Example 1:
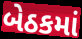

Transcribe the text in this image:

બેઠકમાં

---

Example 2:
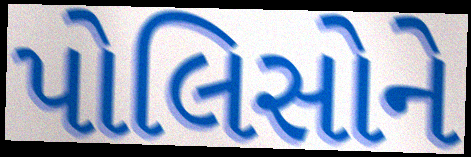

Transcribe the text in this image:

પોલિસોને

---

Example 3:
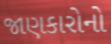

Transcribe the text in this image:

જાણકારોનો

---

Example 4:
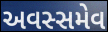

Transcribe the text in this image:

અવસ્સમેવ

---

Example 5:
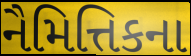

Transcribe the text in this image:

નૈમિત્તિકના